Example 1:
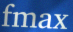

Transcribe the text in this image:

fmax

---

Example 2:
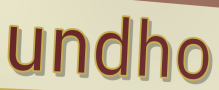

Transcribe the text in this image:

undho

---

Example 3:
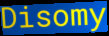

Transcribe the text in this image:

Disomy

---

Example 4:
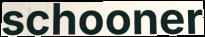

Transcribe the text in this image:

schooner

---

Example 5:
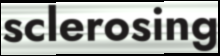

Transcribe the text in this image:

sclerosing